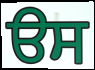
ੳਸ